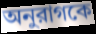
অনুরাগকে